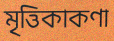
মৃত্তিকাকণা